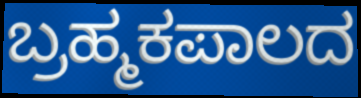
ಬ್ರಹ್ಮಕಪಾಲದ